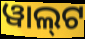
ୱାଲ୍‌ଟ